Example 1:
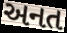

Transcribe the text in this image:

અનત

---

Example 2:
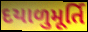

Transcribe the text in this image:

દયાળુમૂર્તિ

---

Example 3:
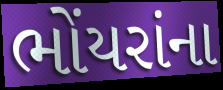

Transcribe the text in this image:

ભોંયરાંના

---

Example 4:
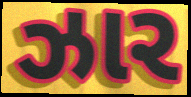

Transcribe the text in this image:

ઝાર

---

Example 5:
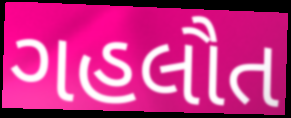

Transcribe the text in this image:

ગહલૌત